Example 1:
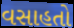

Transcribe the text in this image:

વસાહતો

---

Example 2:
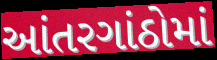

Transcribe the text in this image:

આંતરગાંઠોમાં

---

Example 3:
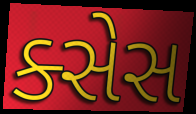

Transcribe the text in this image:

ક્સેસ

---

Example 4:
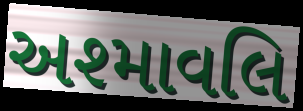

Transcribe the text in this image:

અશ્માવલિ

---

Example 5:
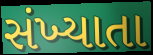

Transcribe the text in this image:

સંખ્યાતા